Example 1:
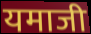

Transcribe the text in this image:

यमाजी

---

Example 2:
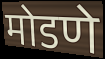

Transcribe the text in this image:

मोडणे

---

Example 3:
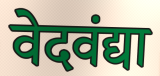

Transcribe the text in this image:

वेदवंद्या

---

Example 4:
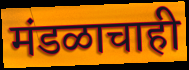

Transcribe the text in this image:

मंडळाचाही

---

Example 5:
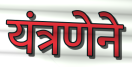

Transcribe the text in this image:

यंत्रणेने